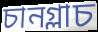
চানগ্লাচ